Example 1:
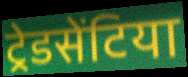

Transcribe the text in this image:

ट्रेडसेंटिया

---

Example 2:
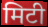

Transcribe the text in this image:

मिटी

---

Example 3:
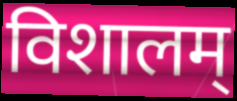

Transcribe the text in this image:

विशालम्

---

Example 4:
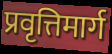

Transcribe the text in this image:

प्रवृत्तिमार्ग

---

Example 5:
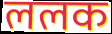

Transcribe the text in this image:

ललक